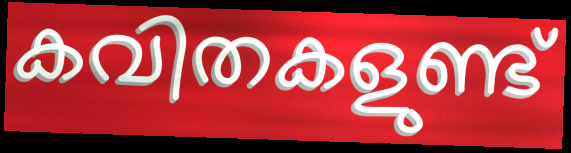
കവിതകളുണ്ട്